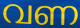
വണ